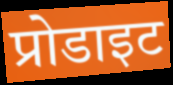
प्रोडाइट